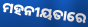
ମହନୀୟତାରେ